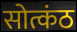
सोत्कंठ